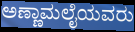
ಅಣ್ಣಾಮಲೈಯವರು